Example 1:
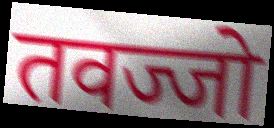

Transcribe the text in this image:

तवज्जो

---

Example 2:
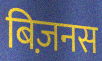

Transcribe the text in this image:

बिज़नस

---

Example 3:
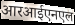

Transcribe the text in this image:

आरआईएनएल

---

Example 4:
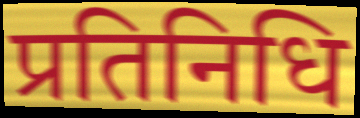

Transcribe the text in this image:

प्रतिनिधि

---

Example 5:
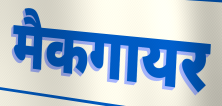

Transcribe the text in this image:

मैकगायर